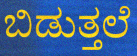
ಬಿಡುತ್ತಲೆ